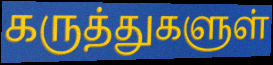
கருத்துகளுள்